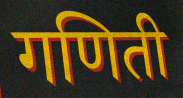
गणिती